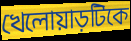
খেলোয়াড়টিকে